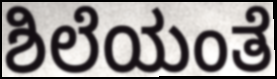
ಶಿಲೆಯಂತೆ